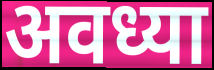
अवध्या